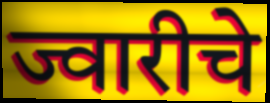
ज्वारीचे